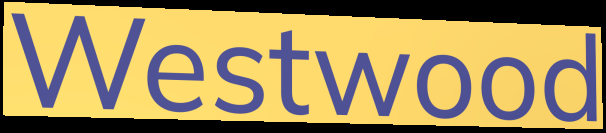
Westwood